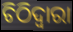
ଚିଠିଦ୍ୱାରା